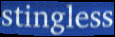
stingless